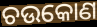
ଚଉକୋଣ